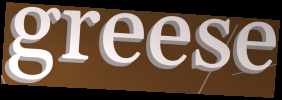
greese